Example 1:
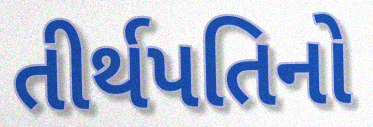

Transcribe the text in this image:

તીર્થપતિનો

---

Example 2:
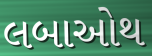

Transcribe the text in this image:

લબાઓથ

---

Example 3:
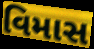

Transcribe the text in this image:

વિમાસ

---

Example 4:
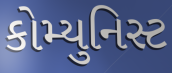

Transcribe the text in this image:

કોમ્યુનિસ્ટ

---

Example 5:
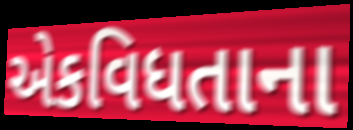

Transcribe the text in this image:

એકવિધતાના